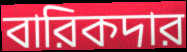
বারিকদার